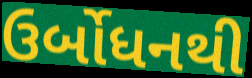
ઉર્બોધનથી